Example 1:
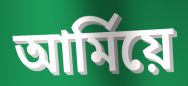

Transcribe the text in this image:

আৰ্মিয়ে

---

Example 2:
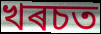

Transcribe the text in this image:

খৰচত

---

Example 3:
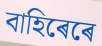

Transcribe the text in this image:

বাহিৰেৰে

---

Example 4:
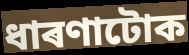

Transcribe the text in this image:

ধাৰণাটোক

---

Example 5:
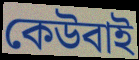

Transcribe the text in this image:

কেউবাই